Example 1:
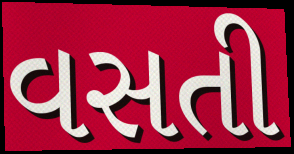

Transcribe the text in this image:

વસતી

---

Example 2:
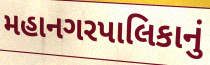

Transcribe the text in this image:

મહાનગરપાલિકાનું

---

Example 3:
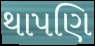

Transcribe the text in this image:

થાપણિ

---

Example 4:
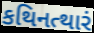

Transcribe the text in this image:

કથિનત્થારં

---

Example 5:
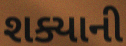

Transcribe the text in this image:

શક્યાની